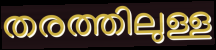
തരത്തിലുള്ള